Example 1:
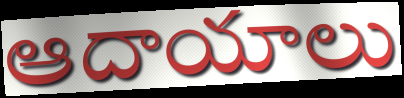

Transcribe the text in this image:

ఆదాయాలు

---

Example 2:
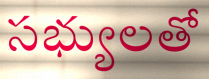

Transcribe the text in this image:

సభ్యులతో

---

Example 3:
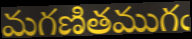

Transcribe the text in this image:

మగణితముగఁ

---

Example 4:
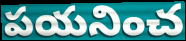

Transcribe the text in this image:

పయనించ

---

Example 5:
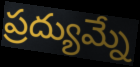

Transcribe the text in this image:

ప్రద్యుమ్నే